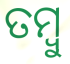
ତମ୍ବୁ